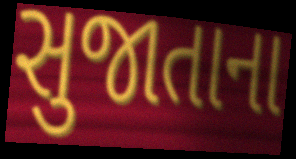
સુજાતાના